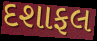
દશાફલ